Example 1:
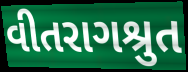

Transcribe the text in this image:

વીતરાગશ્રુત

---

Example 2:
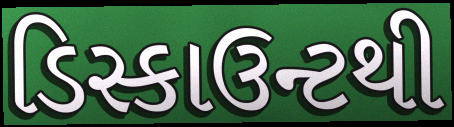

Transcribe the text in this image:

ડિસ્કાઉન્ટથી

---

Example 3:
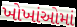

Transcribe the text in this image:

ખોખાંઓમાં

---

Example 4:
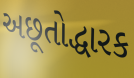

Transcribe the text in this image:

અછૂતોદ્ધારક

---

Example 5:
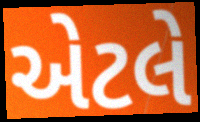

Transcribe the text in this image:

એેટલે